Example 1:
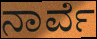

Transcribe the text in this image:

ನಾರ್ವೆ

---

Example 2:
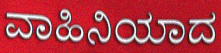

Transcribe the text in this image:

ವಾಹಿನಿಯಾದ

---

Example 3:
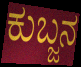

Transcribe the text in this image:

ಕುಬ್ಜನ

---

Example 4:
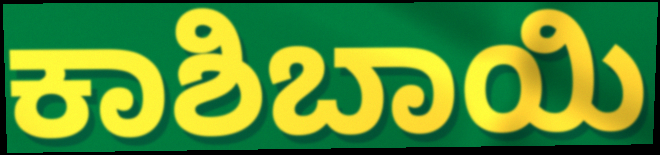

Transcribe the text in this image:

ಕಾಶಿಬಾಯಿ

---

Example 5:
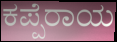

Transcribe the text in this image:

ಕಪ್ಪೆರಾಯ